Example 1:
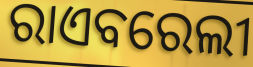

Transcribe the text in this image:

ରାଏବରେଲୀ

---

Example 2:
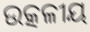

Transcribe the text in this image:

ଉତ୍କଳୀୟ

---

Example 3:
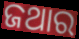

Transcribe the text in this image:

ଜଥାର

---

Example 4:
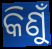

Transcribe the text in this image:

କିଣୁଁ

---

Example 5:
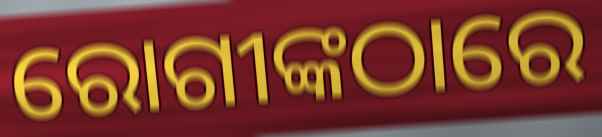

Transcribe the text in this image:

ରୋଗୀଙ୍କଠାରେ